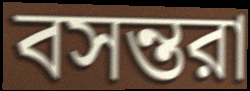
বসন্তরা